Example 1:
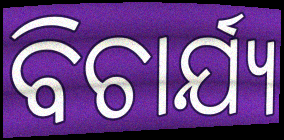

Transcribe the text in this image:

ବିଚାର୍ଯ୍ୟ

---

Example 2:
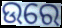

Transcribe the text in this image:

ଉରେ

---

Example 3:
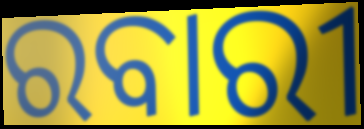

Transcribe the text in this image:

ରବାରୀ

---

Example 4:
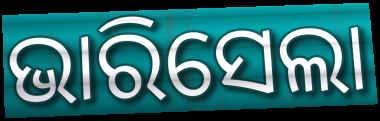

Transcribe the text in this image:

ଭାରିସେଲା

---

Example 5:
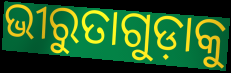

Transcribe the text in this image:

ଭୀରୁତାଗୁଡ଼ାକୁ